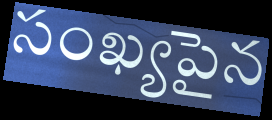
సంఖ్యపైన